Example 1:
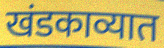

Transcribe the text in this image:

खंडकाव्यात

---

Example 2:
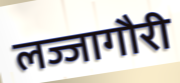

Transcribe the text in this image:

लज्जागौरी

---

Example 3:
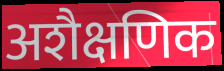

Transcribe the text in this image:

अशैक्षणिक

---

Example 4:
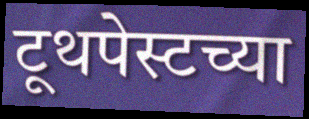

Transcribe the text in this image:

टूथपेस्टच्या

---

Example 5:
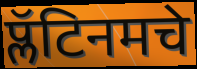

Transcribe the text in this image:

प्लॅटिनमचे